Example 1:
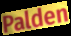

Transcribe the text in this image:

Palden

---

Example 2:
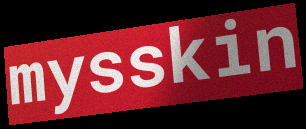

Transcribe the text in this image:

mysskin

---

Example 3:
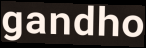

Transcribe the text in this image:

gandho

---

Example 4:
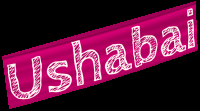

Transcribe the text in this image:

Ushabai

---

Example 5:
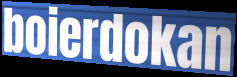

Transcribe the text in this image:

boierdokan